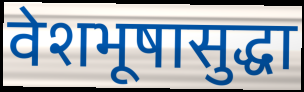
वेशभूषासुद्धा